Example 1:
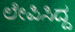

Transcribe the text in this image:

ಲೇಪಿಸಿದ್ದ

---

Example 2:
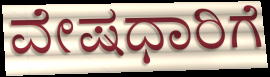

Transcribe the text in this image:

ವೇಷಧಾರಿಗೆ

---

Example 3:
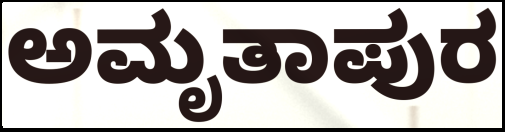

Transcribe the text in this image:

ಅಮೃತಾಪುರ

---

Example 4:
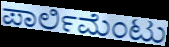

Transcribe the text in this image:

ಪಾರ್ಲಿಮೆಂಟು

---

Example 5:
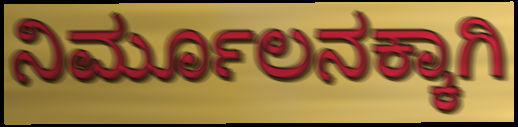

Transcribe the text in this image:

ನಿರ್ಮೂಲನಕ್ಕಾಗಿ